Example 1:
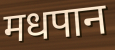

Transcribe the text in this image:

मधपान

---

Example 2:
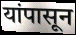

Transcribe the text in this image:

यांपासून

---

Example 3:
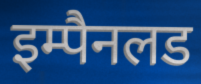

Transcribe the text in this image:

इम्पैनलड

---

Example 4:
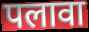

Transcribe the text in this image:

पलावा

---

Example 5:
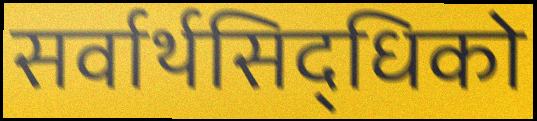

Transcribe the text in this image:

सर्वार्थसिद्धिको